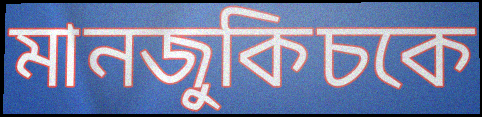
মানজুকিচকে